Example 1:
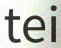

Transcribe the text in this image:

tei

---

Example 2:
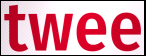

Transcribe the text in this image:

twee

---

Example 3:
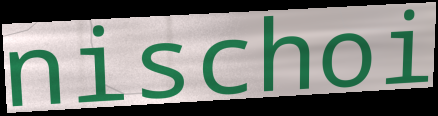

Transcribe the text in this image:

nischoi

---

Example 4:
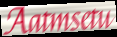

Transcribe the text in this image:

Aatmsetu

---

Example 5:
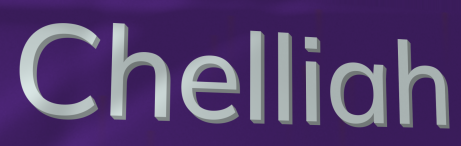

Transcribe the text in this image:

Chelliah